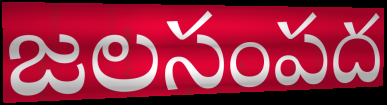
జలసంపద